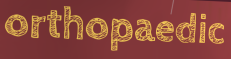
orthopaedic